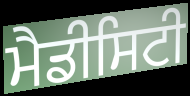
ਮੈਡੀਸਿਟੀ